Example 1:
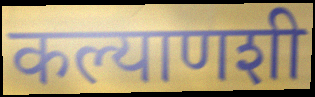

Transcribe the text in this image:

कल्याणशी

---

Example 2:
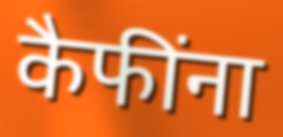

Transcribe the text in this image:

कैफींना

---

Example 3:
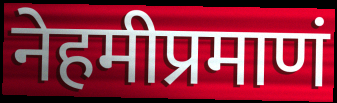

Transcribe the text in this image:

नेहमीप्रमाणं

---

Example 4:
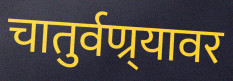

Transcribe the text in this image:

चातुर्वण्र्यावर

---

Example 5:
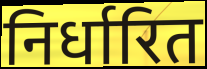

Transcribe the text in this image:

निर्धारित